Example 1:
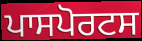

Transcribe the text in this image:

ਪਾਸਪੋਰਟਸ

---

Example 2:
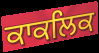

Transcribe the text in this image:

ਕਾਕਲਿਕ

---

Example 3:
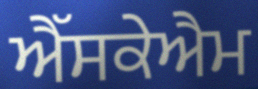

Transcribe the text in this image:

ਐੱਸਕੇਐਮ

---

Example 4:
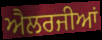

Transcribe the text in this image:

ਐਲਰਜੀਆਂ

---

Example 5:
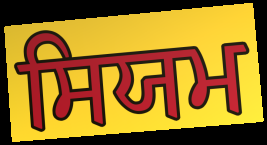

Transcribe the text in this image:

ਸਿਯਮ